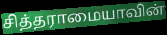
சித்தராமையாவின்